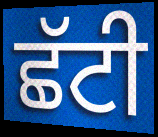
ਛੱਟੀ